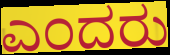
ಎಂದರು